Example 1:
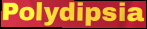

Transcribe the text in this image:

Polydipsia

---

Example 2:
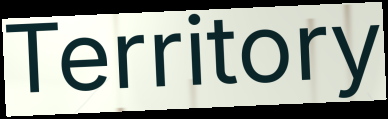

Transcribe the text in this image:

Territory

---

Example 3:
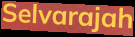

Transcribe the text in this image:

Selvarajah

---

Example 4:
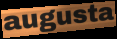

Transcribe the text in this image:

augusta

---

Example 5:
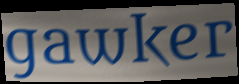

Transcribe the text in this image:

gawker